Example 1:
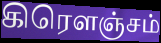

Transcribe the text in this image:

கிரௌஞ்சம்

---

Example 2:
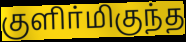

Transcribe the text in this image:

குளிர்மிகுந்த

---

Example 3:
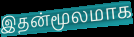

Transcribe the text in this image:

இதன்மூலமாக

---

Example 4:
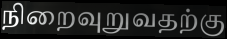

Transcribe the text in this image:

நிறைவுறுவதற்கு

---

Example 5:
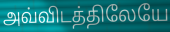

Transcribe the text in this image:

அவ்விடத்திலேயே